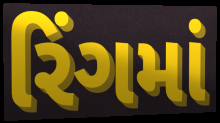
રિંગમાં